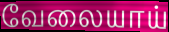
வேலையாய்